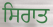
ਸਿਰਾਤ